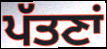
ਪੱਤਣਾਂ